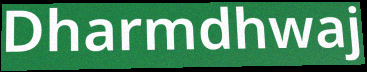
Dharmdhwaj